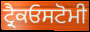
ਟ੍ਰੈਕਓਸਟੋਮੀ